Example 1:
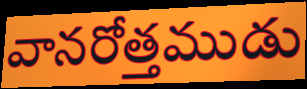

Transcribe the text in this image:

వానరోత్తముడు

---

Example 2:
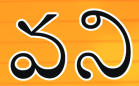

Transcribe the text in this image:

వని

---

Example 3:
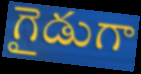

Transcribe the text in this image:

గైడుగా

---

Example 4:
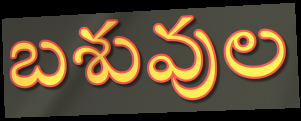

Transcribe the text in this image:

బశువుల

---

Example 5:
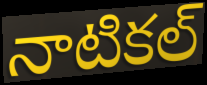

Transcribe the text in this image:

నాటికల్